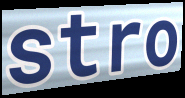
stro